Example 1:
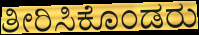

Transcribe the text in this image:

ತೀರಿಸಿಕೊಂಡರು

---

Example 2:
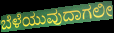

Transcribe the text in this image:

ಬೆಳೆಯುವುದಾಗಲೀ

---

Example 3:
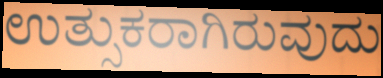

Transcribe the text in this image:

ಉತ್ಸುಕರಾಗಿರುವುದು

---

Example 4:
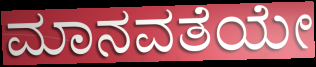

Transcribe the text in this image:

ಮಾನವತೆಯೇ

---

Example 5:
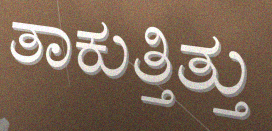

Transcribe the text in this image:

ತಾಕುತ್ತಿತ್ತು